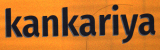
kankariya